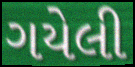
ગયેલી